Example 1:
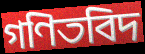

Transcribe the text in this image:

গণিতবিদ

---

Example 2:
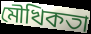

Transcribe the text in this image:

মৌখিকতা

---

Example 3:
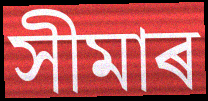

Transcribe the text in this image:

সীমাৰ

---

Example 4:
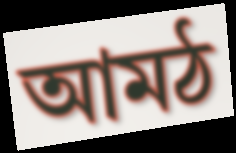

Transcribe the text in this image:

আমঠ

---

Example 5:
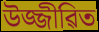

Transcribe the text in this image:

উজ্জীৱিত